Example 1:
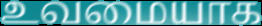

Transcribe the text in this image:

உவமையாக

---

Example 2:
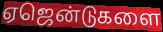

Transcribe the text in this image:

ஏஜென்டுகளை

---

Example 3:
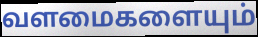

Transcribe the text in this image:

வளமைகளையும்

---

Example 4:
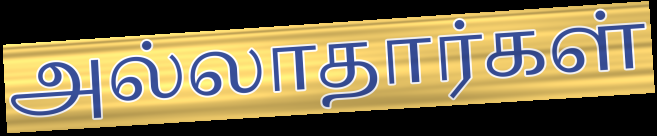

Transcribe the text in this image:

அல்லாதார்கள்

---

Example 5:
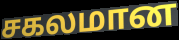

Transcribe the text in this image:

சகலமான